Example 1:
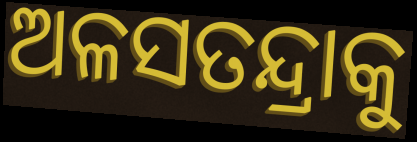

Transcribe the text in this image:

ଅଳସତନ୍ଦ୍ରାକୁ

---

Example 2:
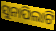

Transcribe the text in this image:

ସୁନାପିଲାଟି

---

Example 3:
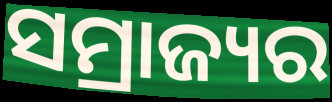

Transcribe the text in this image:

ସମ୍ରାଜ୍ୟର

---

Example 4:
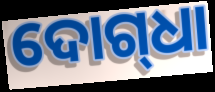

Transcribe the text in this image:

ଦୋଗ୍‌ଧା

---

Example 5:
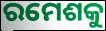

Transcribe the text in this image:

ରମେଶକୁ